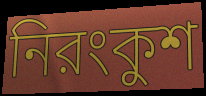
নিরংকুশ